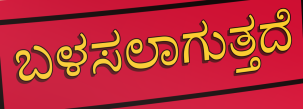
ಬಳಸಲಾಗುತ್ತದೆ